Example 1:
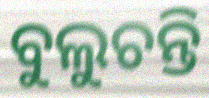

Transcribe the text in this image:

ବୁଲୁଚନ୍ତି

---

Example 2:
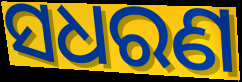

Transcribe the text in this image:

ସଧରଣ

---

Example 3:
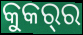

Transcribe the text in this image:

କୁକର୍‌ର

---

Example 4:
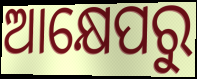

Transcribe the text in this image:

ଆକ୍ଷେପରୁ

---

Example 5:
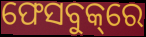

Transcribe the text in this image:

ଫେସବୁକ୍‌ରେ